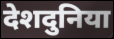
देशदुनिया